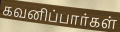
கவனிப்பார்கள்